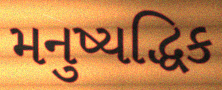
મનુષ્યદ્ધિક